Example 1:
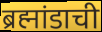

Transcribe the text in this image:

ब्रह्मांडाची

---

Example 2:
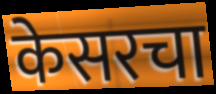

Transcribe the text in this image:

केसरचा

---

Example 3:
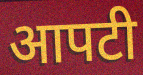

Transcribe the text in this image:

आपटी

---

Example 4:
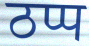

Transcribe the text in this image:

ठप्प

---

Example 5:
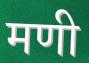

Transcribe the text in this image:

मणी